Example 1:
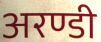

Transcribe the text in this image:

अरण्डी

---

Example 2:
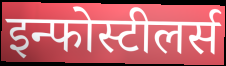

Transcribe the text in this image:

इन्फोस्टीलर्स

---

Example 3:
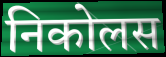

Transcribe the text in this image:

निकोलस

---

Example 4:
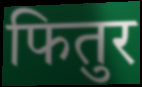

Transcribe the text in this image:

फितुर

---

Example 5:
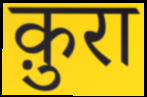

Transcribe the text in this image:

क़ुरा